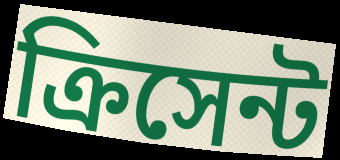
ক্রিসেন্ট